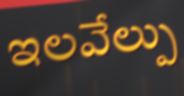
ఇలవేల్పు